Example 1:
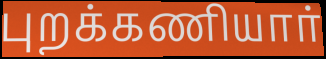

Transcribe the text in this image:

புறக்கணியார்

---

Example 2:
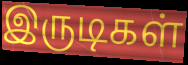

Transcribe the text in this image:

இருடிகள்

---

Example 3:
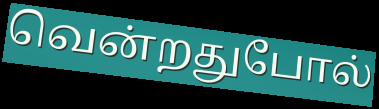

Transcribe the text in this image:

வென்றதுபோல்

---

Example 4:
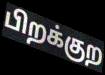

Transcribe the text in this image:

பிறக்குற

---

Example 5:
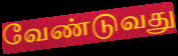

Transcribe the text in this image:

வேண்டுவது